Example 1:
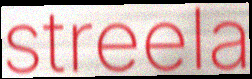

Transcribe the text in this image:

streela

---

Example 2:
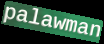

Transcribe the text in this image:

palawman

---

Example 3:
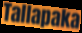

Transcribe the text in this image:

Tallapaka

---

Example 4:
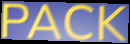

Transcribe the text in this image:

PACK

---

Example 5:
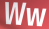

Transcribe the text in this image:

Ww